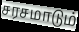
சரசமாடும்